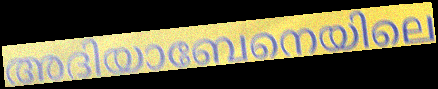
അദിയാബേനെയിലെ